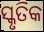
ସ୍କୃତିକ